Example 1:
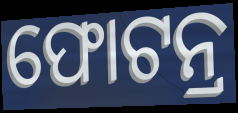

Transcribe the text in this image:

ଫୋଟନ୍ର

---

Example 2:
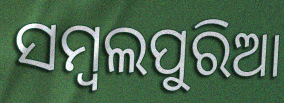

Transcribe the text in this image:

ସମ୍ୱଲପୁରିଆ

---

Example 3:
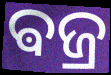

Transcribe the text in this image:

ଵଜ୍ର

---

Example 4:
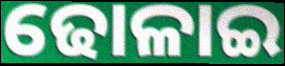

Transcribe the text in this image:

ଢୋଳାଇ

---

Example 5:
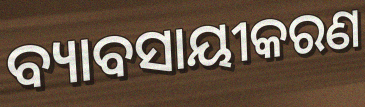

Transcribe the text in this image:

ବ୍ୟାବସାୟୀକରଣ